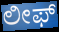
ಲೀಫ್